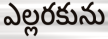
ఎల్లరకును